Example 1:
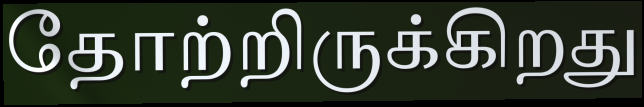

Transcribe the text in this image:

தோற்றிருக்கிறது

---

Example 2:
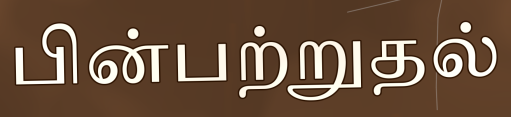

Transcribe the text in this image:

பின்பற்றுதல்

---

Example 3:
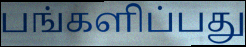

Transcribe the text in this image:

பங்களிப்பது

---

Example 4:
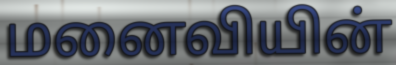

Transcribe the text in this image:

மனைவியின்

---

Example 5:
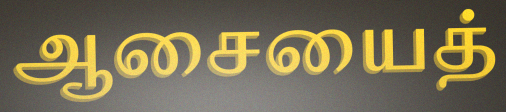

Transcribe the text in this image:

ஆசையைத்